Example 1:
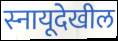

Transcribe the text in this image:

स्नायूदेखील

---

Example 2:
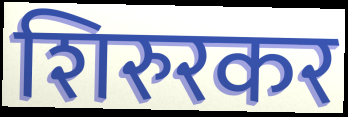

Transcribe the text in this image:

शिरुरकर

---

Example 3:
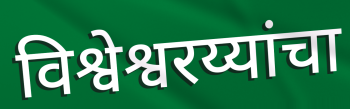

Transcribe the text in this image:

विश्वेश्वरय्यांचा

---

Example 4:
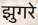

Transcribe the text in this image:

झुगरे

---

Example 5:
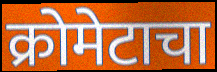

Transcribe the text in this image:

क्रोमेटाचा